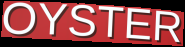
OYSTER